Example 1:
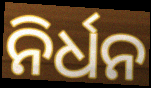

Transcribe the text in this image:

ନିର୍ଧନ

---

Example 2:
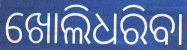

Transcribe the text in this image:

ଖୋଲିଧରିବା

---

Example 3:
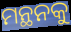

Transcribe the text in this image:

ମନ୍ଥନକୁ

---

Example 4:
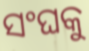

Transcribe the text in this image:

ସଂଘକୁ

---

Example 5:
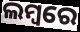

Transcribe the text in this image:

ଲମ୍ବରେ